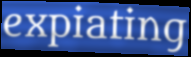
expiating